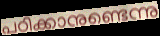
പഠിക്കാനുണ്ടെന്നു